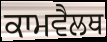
ਕਾਮਵੈਲਥ